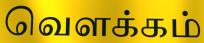
வெளக்கம்